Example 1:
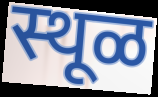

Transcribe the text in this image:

स्थूळ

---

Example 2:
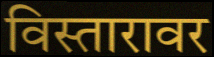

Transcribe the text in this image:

विस्तारावर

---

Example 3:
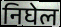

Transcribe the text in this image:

निघेल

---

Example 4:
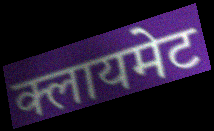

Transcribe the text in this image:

क्लायमेट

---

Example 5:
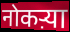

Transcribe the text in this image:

नोकऱ्‍या